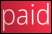
paid